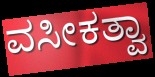
ವಸೀಕತ್ವಾ